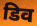
डिव